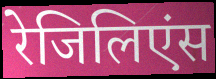
रेजिलिएंस